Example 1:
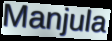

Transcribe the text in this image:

Manjula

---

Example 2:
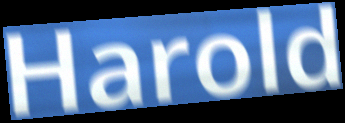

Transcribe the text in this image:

Harold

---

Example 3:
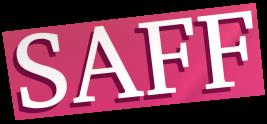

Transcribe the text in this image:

SAFF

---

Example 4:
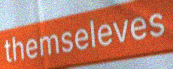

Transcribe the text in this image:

themseleves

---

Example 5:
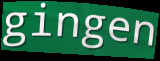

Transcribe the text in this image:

gingen